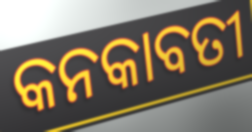
କନକାବତୀ